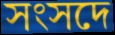
সংসদে